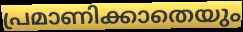
പ്രമാണിക്കാതെയും